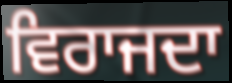
ਵਿਰਾਜਦਾ